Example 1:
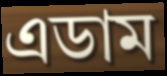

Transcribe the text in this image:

এডাম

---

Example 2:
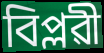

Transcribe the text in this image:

বিপ্লৱী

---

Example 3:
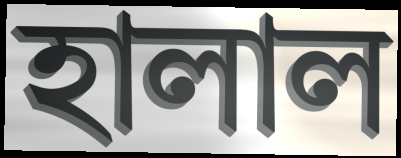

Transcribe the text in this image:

হালাল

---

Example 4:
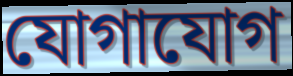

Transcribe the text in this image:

যোগাযোগ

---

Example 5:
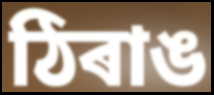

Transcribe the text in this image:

ঠিৰাঙ